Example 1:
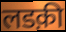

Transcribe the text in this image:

लडक़ी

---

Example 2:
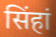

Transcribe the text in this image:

सिंहां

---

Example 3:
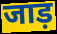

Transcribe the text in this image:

जाड़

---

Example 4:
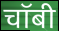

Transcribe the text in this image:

चॉबी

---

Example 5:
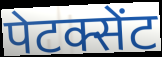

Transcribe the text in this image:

पेटक्सेंट